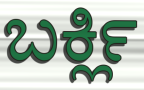
ಬರ್ಕ್ಲಿ